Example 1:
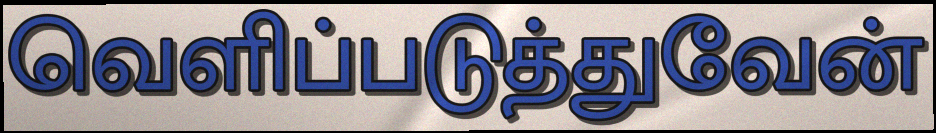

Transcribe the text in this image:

வெளிப்படுத்துவேன்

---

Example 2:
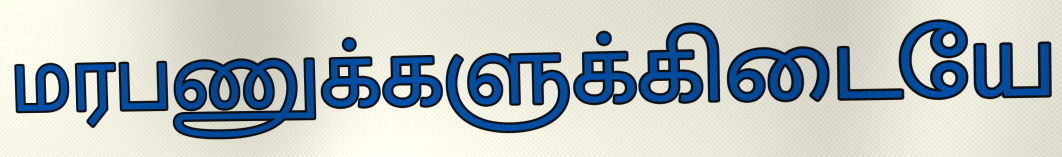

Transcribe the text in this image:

மரபணுக்களுக்கிடையே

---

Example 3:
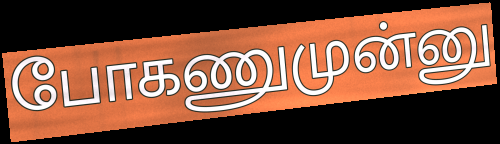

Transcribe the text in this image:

போகணுமுன்னு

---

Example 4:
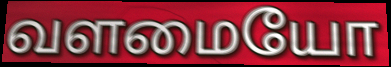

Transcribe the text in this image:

வளமையோ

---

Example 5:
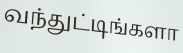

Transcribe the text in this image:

வந்துட்டிங்களா